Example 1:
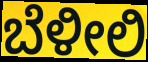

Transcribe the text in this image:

ಬೆಳೀಲಿ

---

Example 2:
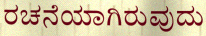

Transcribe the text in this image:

ರಚನೆಯಾಗಿರುವುದು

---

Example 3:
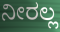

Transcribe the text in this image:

ನೀರಲ್ಲ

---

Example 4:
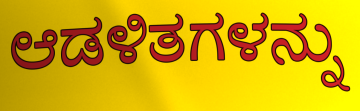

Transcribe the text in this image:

ಆಡಳಿತಗಳನ್ನು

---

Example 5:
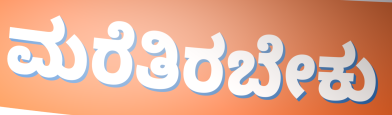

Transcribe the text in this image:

ಮರೆತಿರಬೇಕು